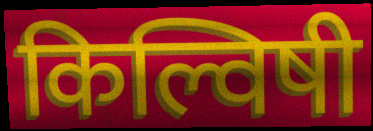
किल्विषी